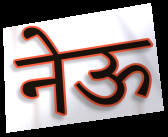
नेऊ